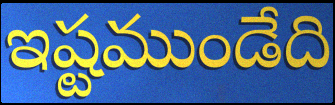
ఇష్టముండేది